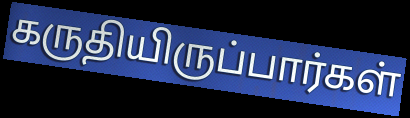
கருதியிருப்பார்கள்